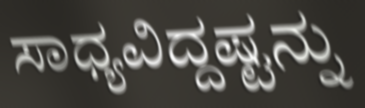
ಸಾಧ್ಯವಿದ್ದಷ್ಟನ್ನು